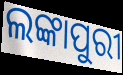
ଲଙ୍କାପୁରୀ